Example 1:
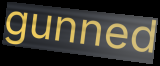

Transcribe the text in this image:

gunned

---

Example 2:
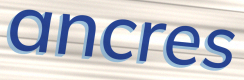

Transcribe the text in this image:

ancres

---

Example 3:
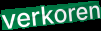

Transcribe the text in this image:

verkoren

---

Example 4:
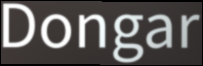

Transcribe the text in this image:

Dongar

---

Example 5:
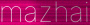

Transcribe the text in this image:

mazhai